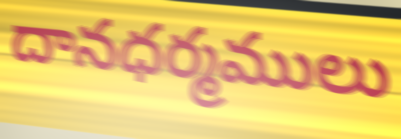
దానధర్మములు